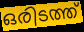
ഒരിടത്ത്